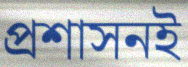
প্রশাসনই